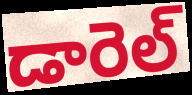
డారెల్